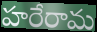
హరేరామ